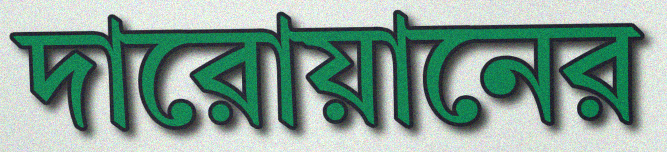
দারোয়ানের